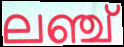
ലഞ്ച്